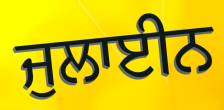
ਜੁਲਾਈਨ